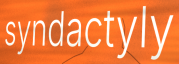
syndactyly